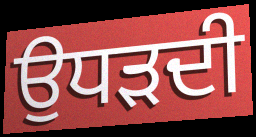
ਉਧੜਦੀ